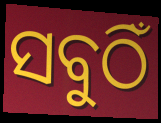
ସବୁଠିଁ